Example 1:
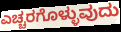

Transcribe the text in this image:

ಎಚ್ಚರಗೊಳ್ಳುವುದು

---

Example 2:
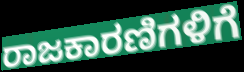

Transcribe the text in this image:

ರಾಜಕಾರಣಿಗಳಿಗೆ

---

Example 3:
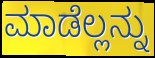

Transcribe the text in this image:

ಮಾಡೆಲ್ಲನ್ನು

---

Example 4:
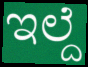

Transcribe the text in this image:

ಇಲ್ದೆ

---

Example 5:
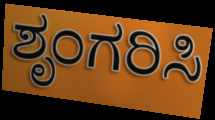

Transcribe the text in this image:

ಶೃಂಗರಿಸಿ